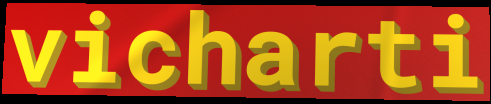
vicharti